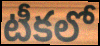
టీకలో